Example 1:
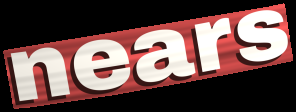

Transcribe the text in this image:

nears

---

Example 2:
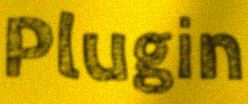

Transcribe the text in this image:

Plugin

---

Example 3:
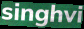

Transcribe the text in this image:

singhvi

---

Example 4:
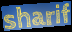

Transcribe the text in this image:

sharif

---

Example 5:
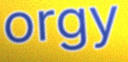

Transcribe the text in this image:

orgy